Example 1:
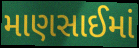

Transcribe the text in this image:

માણસાઈમાં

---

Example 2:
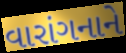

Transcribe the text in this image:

વારાંગનાને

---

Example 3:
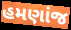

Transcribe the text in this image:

હમણાંજ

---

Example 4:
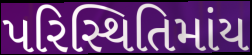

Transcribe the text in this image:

પરિસ્થિતિમાંય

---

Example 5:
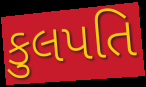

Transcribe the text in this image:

કુલપતિ